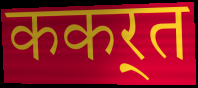
ककर्त